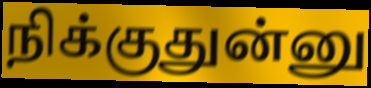
நிக்குதுன்னு